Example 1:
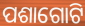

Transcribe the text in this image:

ପଶାଗୋଟି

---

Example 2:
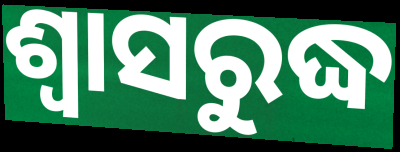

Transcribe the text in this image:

ଶ୍ବାସରୁଦ୍ଧ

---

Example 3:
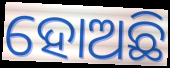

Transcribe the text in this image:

ହୋଅଛି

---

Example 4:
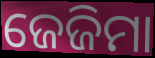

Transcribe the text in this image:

ଜେଜିମା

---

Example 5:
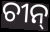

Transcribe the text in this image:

ଚୀନ୍